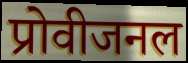
प्रोवीजनल